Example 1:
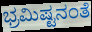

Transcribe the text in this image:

ಭ್ರಮಿಷ್ಟನಂತೆ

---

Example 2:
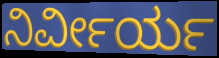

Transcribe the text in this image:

ನಿರ್ವೀರ್ಯ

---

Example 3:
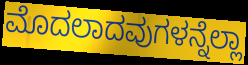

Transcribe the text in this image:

ಮೊದಲಾದವುಗಳನ್ನೆಲ್ಲಾ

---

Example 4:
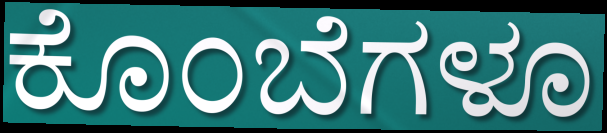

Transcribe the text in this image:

ಕೊಂಬೆಗಳೂ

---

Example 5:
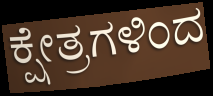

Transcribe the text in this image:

ಕ್ಷೇತ್ರಗಳಿಂದ